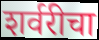
शर्वरीचा